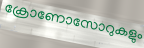
ക്രോണോസോറുകളും